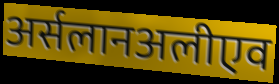
अर्सलानअलीएव